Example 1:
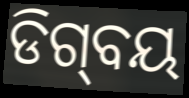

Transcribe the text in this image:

ଡିଗ୍‌ବୟ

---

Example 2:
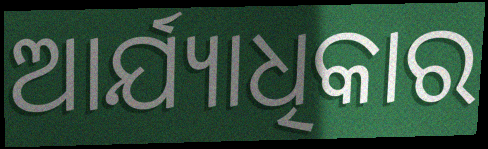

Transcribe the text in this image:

ଆର୍ଯ୍ୟାଧିକାର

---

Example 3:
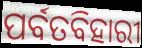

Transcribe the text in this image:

ପର୍ବତବିହାରୀ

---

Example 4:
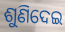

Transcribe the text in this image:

ଶୁଣିଦେଇ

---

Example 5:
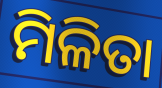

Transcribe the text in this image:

ମିଳିତା